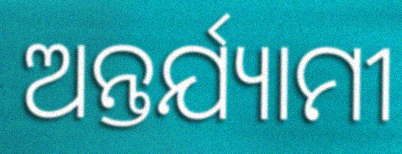
ଅନ୍ତର୍ଯ୍ୟାମୀ